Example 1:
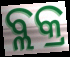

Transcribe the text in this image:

ବ୍ଲକ୍ର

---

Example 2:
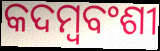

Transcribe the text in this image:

କଦମ୍ବବଂଶୀ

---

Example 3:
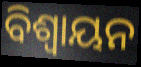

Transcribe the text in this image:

ବିଶ୍ୱାୟନ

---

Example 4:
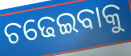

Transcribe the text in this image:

ଚଢେଇବାକୁ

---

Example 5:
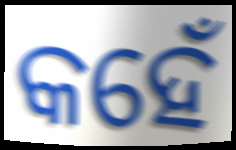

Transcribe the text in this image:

କହେଁ